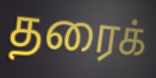
தரைக்